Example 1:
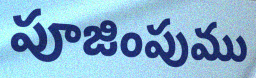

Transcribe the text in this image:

పూజింపుము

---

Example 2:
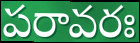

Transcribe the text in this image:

పరావరః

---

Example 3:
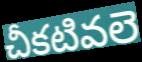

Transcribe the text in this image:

చీకటివలె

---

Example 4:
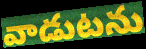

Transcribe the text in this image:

వాడుటను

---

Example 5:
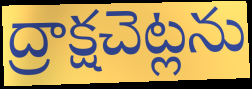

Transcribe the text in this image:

ద్రాక్షచెట్లను